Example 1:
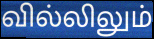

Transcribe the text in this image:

வில்லிலும்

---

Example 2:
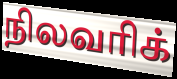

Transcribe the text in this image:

நிலவரிக்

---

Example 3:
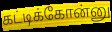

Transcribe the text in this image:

கட்டிக்கோன்னு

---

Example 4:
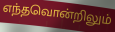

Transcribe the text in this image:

எந்தவொன்றிலும்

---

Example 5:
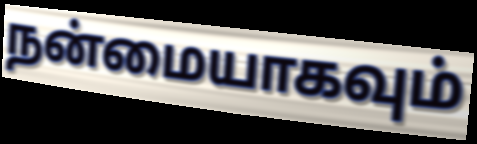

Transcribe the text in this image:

நன்மையாகவும்